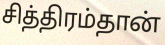
சித்திரம்தான்